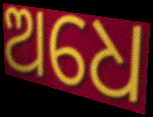
ଅଧେ